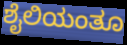
ಶೈಲಿಯಂತೂ